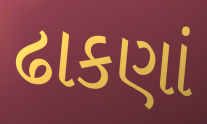
ઢાકણાં